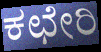
ಕಛೇರಿ